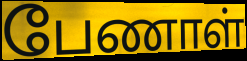
பேணாள்